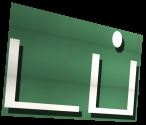
டப்